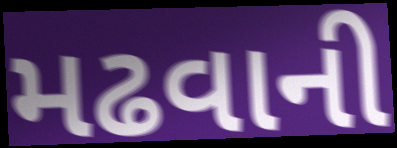
મઢવાની